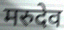
मरुदेव